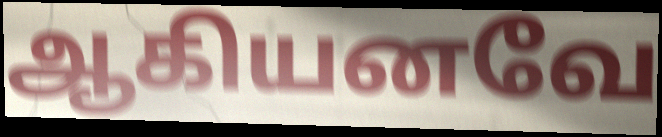
ஆகியனவே